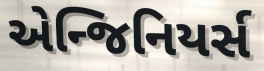
એન્જિનિયર્સ